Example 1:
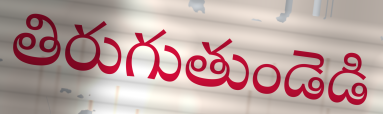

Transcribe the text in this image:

తిరుగుతుండెడి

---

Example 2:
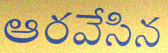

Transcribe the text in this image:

ఆరవేసిన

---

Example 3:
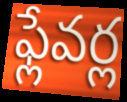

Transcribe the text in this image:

ఫ్లేవర్ల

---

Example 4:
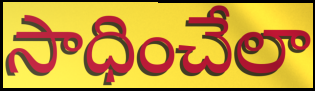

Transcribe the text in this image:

సాధించేలా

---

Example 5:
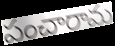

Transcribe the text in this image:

పంచారామ